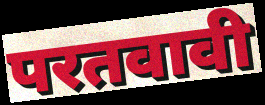
परतवावी